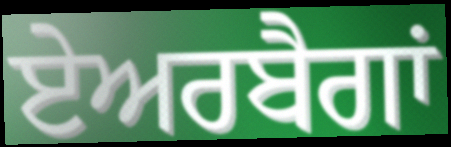
ਏਅਰਬੈਗਾਂ